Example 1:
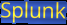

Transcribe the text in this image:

Splunk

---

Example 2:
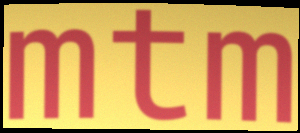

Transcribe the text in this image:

mtm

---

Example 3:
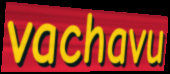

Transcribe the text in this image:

vachavu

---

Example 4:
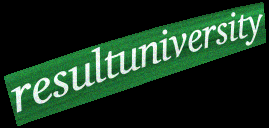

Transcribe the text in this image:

resultuniversity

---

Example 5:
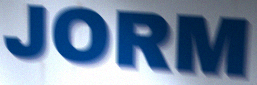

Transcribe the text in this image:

JORM